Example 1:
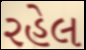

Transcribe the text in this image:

રહેલ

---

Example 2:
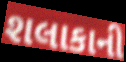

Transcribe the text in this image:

શલાકાની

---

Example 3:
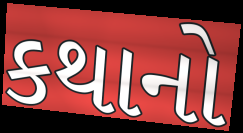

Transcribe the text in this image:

કથાનો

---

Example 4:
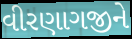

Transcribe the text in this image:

વીરણાગજીને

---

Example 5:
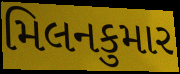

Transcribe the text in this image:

મિલનકુમાર